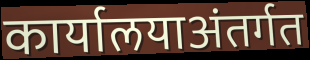
कार्यालयाअंतर्गत